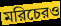
মরিচেরও